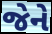
જેને